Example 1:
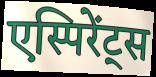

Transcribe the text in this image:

एस्पिरेंट्स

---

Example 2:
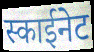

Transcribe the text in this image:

स्काईनेट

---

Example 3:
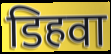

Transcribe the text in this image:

डिहवा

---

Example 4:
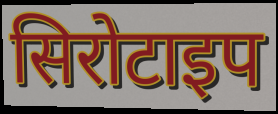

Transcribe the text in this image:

सिरोटाइप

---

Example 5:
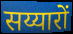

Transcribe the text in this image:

सय्यारों